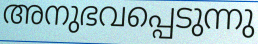
അനുഭവപ്പെടുന്നു